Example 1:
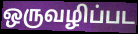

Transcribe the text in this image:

ஒருவழிப்பட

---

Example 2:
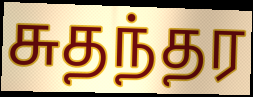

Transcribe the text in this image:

சுதந்தர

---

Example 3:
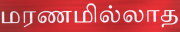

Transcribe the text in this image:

மரணமில்லாத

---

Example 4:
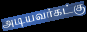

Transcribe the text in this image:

அடியவர்கட்கு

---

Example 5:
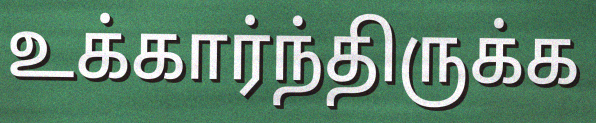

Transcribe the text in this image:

உக்கார்ந்திருக்க